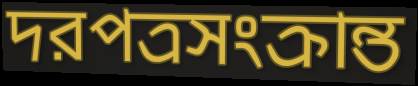
দরপত্রসংক্রান্ত